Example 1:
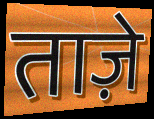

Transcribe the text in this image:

ताज़े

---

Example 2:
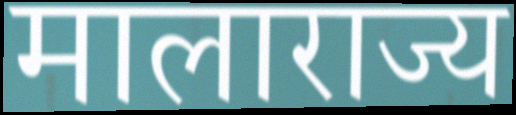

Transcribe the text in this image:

मालाराज्य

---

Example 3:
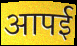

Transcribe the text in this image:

आपई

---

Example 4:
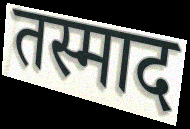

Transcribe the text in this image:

तस्माद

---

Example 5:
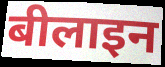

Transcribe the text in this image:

बीलाइन